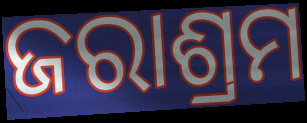
ଜରାଶ୍ରମ